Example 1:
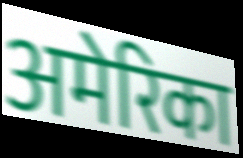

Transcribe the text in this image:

अमेरिका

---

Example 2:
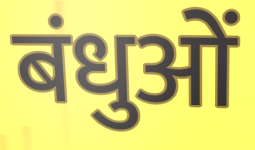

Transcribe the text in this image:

बंधुओं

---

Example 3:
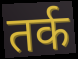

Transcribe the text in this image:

तर्क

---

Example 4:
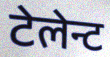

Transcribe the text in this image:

टेलेन्ट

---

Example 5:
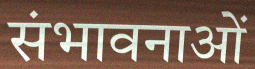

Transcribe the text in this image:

संभावनाओं